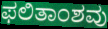
ಫಲಿತಾಂಶವು